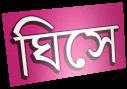
ঘিসে